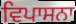
ਵਿਪਾਸਨਾ